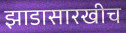
झाडासारखीच